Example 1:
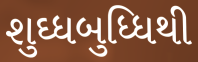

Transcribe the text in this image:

શુઘ્ધબુધ્ધિથી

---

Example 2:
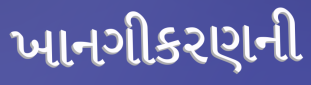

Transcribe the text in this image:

ખાનગીકરણની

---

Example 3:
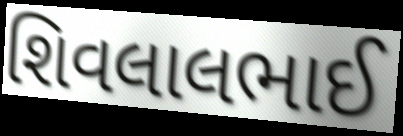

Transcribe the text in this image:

શિવલાલભાઈ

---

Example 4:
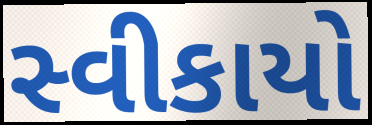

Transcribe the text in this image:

સ્વીકાયો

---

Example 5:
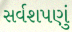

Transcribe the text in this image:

સર્વશપણું